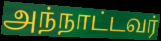
அந்நாட்டவர்